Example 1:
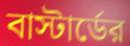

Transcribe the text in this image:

বাস্টার্ডের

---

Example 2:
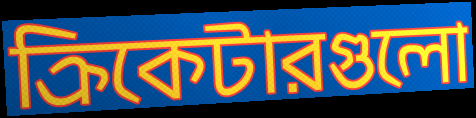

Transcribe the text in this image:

ক্রিকেটারগুলো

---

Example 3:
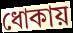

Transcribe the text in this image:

ধোকায়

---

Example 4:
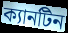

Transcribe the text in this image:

ক্যানটিন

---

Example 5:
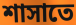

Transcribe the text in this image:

শাসাতে